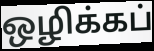
ஒழிக்கப்